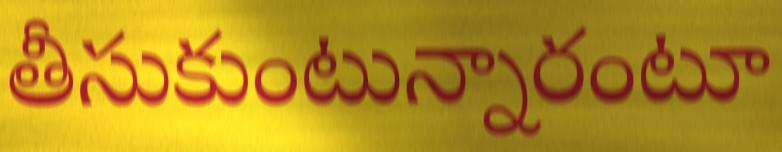
తీసుకుంటున్నారంటూ